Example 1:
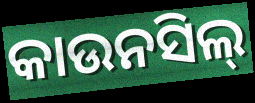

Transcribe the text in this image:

କାଉନସିଲ୍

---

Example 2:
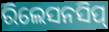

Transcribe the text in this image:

ରିଲେସନସିପ୍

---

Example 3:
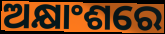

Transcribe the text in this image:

ଅକ୍ଷାଂଶରେ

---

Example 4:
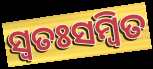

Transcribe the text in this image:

ସ୍ୱତଃସମ୍ବିତ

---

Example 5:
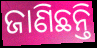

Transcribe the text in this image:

ଜାଣିଛନ୍ତି